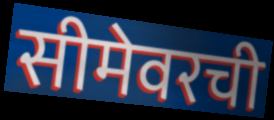
सीमेवरची